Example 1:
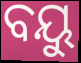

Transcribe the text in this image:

ବୟୁ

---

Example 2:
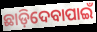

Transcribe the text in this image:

ଛାଡ଼ିଦେବାପାଇଁ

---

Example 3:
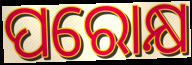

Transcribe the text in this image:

ପରୋକ୍ଷ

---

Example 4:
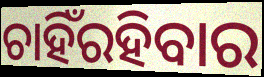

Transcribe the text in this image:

ଚାହିଁରହିବାର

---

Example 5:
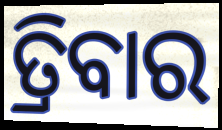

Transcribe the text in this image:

ତ୍ରିବାର